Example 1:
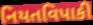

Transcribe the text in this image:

નિયતવિપાકી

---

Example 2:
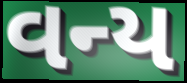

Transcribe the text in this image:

વન્ય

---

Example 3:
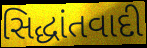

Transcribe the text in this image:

સિદ્ધાંતવાદી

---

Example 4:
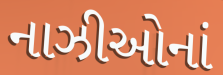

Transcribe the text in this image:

નાઝીઓનાં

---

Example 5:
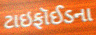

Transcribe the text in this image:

ટાઇફૉઈડના